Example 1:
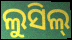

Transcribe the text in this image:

ଲୁସିଲ୍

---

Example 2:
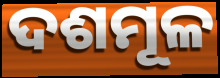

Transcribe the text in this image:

ଦଶମୂଳ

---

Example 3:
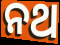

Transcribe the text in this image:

ନଥ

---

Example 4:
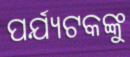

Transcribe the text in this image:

ପର୍ଯ୍ୟଟକଙ୍କୁ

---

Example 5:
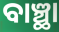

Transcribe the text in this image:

ବାଞ୍ଛା